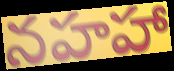
నహహా